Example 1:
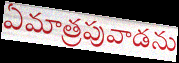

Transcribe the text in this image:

ఏమాత్రపువాడను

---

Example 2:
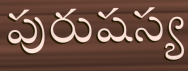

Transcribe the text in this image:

పురుషస్య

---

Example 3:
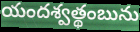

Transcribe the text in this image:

యందశ్వత్థంబును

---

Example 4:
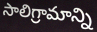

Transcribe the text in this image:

సాలిగ్రామాన్ని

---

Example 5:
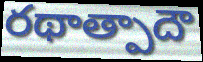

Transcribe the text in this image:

రథాత్పాదౌ